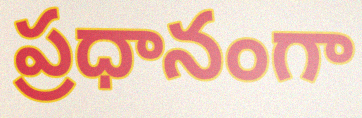
ప్రధానంగా